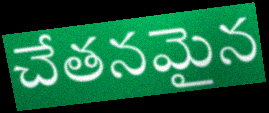
చేతనమైన